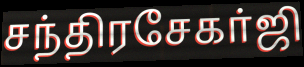
சந்திரசேகர்ஜி